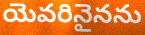
యెవరినైనను